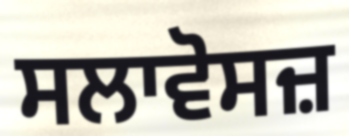
ਸਲਾਵੋਸਜ਼